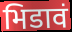
भिडावं